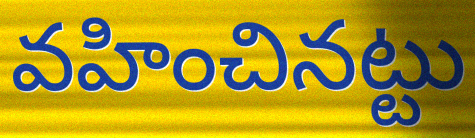
వహించినట్టు